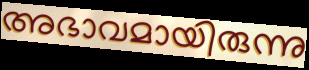
അഭാവമായിരുന്നു